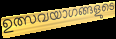
ഉത്സവയാഗങ്ങളുടെ